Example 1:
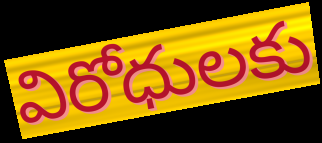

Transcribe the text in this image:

విరోధులకు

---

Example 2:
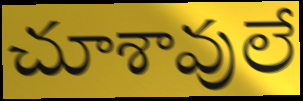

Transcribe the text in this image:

చూశావులే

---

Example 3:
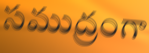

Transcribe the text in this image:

సముద్రంగా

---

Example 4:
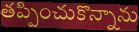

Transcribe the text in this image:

తప్పించుకొన్నాను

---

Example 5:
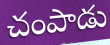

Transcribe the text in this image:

చంపాడు